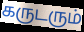
கருடரும்